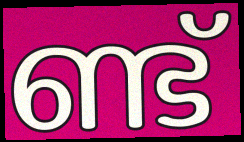
ണ്ട്